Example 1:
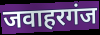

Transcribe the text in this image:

जवाहरगंज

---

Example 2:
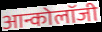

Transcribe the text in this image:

आन्कोलॉजी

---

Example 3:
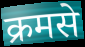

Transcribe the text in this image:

क्रमसे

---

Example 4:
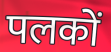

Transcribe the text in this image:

पलकों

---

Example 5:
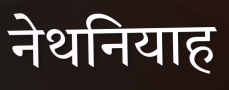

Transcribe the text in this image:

नेथनियाह